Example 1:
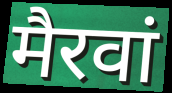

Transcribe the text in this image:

मैरवां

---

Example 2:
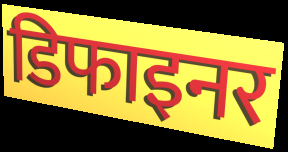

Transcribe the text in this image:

डिफाइनर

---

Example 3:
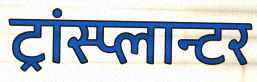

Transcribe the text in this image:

ट्रांस्प्लान्टर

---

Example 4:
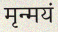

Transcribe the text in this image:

मृन्मयं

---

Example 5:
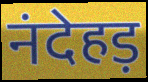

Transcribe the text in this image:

नंदेहड़